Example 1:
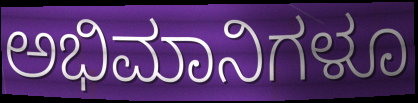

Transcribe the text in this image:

ಅಭಿಮಾನಿಗಳೂ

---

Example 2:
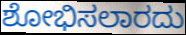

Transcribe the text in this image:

ಶೋಭಿಸಲಾರದು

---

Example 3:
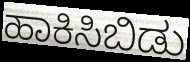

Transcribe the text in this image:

ಹಾಕಿಸಿಬಿಡು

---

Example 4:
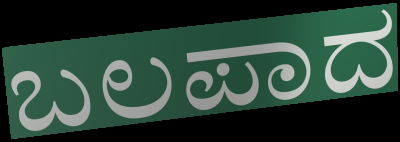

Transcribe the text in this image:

ಬಲಪಾದ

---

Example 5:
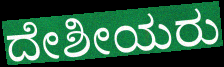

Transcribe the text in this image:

ದೇಶೀಯರು